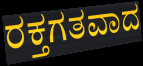
ರಕ್ತಗತವಾದ